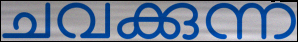
ചവക്കുന്ന